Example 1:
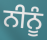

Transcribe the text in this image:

ਨੀਨੂੰ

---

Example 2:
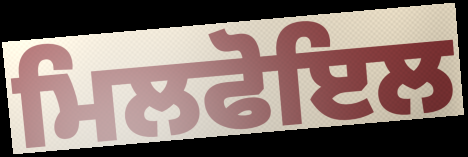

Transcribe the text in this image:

ਮਿਲਫੋਇਲ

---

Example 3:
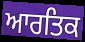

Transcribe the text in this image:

ਆਰਤਿਕ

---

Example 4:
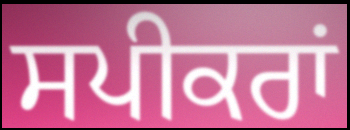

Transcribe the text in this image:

ਸਪੀਕਰਾਂ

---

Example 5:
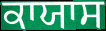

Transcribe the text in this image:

ਕਾਯਾਸ